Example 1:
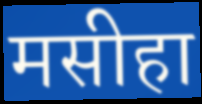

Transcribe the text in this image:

मसीहा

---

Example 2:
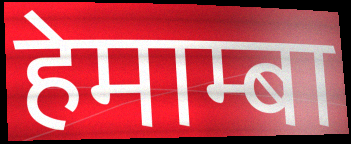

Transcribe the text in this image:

हेमाम्बा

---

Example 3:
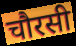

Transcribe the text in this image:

चौरसी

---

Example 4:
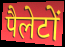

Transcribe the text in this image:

पैलेटों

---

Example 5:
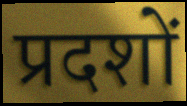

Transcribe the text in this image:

प्रदशों